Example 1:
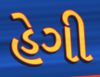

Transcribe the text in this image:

હેગી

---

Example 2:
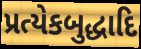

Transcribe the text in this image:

પ્રત્યેકબુદ્ધાદિ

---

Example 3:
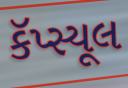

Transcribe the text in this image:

કૅપ્સ્યૂલ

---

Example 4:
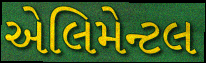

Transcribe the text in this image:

એલિમેન્ટલ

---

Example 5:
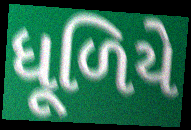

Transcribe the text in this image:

ધૂળિયે